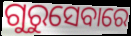
ଗୁରୁସେବାରେ